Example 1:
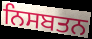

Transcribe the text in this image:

ਨਿਸਬਤਨ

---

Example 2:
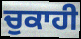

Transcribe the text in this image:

ਚੁਕਾਹੀ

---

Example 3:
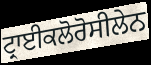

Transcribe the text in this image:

ਟ੍ਰਾਈਕਲੋਰੋਸੀਲੇਨ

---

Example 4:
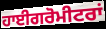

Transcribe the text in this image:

ਹਾਈਗਰੋਮੀਟਰਾਂ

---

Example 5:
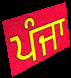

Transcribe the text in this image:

ਪੰਜਾ